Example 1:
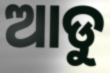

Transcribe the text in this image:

ଆଡୁ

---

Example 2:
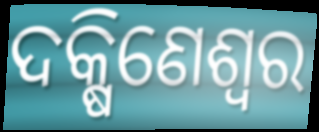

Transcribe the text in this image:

ଦକ୍ଷିଣେଶ୍ୱର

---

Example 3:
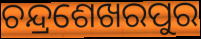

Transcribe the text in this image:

ଚନ୍ଦ୍ରଶେଖରପୁର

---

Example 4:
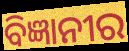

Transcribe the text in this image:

ବିଜ୍ଞାନୀର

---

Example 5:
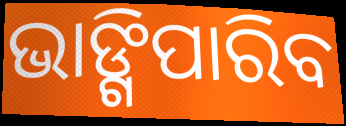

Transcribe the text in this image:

ଭାଙ୍ଗିପାରିବ